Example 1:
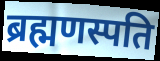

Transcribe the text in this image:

ब्रह्मणस्पति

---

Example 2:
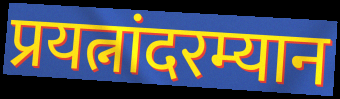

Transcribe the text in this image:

प्रयत्नांदरम्यान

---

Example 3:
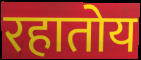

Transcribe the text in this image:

रहातोय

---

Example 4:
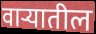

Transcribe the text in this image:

वाऱ्यातील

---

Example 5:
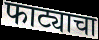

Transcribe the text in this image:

फाट्याचा